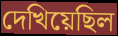
দেখিয়েছিল